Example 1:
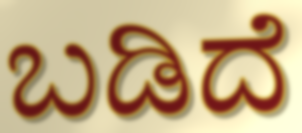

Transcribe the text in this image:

ಬಡಿದೆ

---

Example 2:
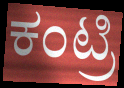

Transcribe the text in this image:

ಕಂಟ್ರಿ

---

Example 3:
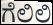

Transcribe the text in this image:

ಗೆಲಿಲಿ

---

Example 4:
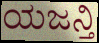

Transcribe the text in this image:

ಯಜನ್ತಿ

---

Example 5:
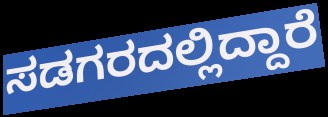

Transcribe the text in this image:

ಸಡಗರದಲ್ಲಿದ್ದಾರೆ